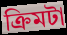
ক্রিমটা